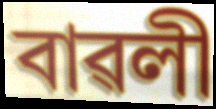
বাৱলী